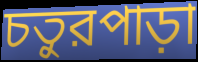
চতুরপাড়া